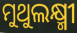
ମୁଥୁଲକ୍ଷ୍ମୀ